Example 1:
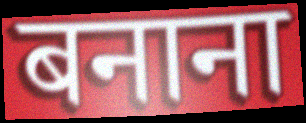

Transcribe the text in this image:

बनाना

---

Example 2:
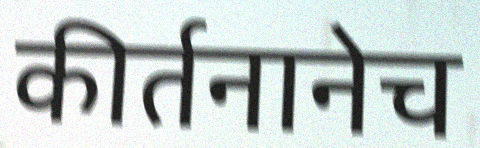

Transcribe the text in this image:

कीर्तनानेच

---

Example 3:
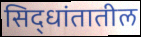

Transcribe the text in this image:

सिद्धांतातील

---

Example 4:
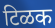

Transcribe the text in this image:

टिळक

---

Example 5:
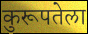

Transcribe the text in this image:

कुरूपतेला